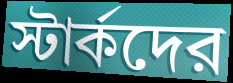
স্টার্কদের